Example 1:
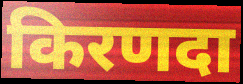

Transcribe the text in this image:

किरणदा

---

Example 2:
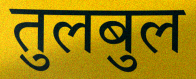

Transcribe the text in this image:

तुलबुल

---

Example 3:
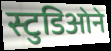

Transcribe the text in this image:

स्टुडिओने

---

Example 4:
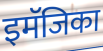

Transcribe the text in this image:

इमॅजिका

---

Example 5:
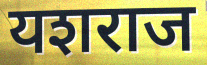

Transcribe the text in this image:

यशराज